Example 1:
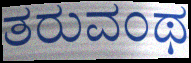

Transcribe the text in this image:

ತರುವಂಥ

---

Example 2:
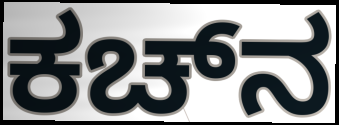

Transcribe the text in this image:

ಕಚ್‌ನ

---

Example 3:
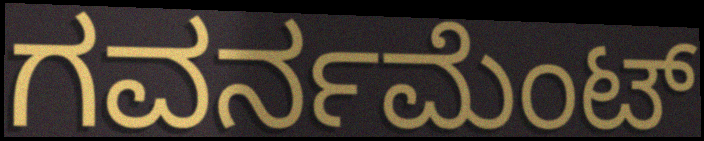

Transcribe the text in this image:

ಗವರ್ನಮೆಂಟ್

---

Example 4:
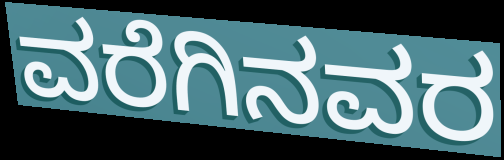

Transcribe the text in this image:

ವರೆಗಿನವರ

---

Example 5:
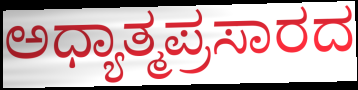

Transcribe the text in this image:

ಅಧ್ಯಾತ್ಮಪ್ರಸಾರದ